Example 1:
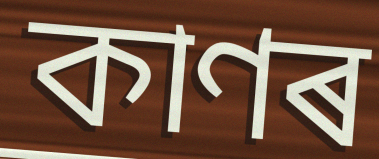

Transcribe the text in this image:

কাণৰ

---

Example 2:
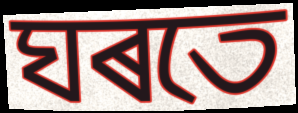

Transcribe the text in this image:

ঘৰতে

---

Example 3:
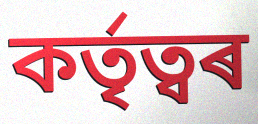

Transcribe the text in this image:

কৰ্তৃত্বৰ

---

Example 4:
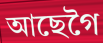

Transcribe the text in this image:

আছেগৈ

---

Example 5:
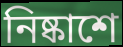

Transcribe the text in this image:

নিষ্কাশে